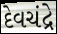
દેવચંદ્રે